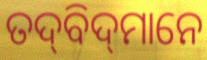
ତଦ୍‌ବିଦ୍‌ମାନେ